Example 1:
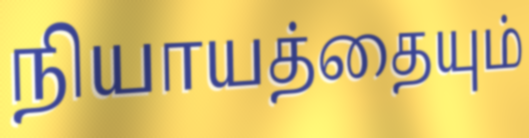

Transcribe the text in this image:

நியாயத்தையும்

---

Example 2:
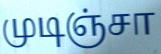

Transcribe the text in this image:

முடிஞ்சா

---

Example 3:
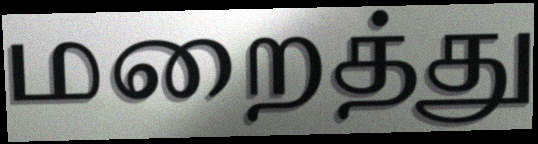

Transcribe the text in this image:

மறைத்து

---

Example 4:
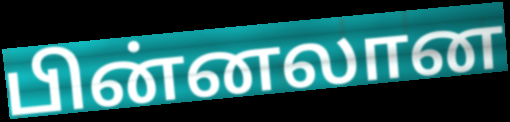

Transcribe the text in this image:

பின்னலான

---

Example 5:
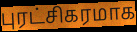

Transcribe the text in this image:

புரட்சிகரமாக